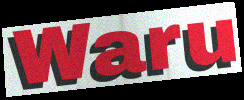
Waru